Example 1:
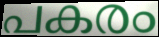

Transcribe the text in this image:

പകരം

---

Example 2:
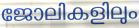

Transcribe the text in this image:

ജോലികളിലും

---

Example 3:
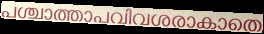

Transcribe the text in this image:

പശ്ചാത്താപവിവശരാകാതെ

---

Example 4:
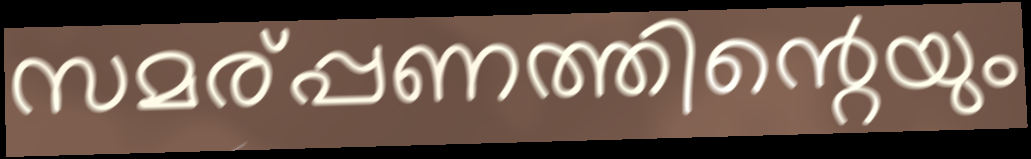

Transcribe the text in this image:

സമര്പ്പണത്തിന്റെയും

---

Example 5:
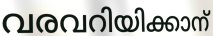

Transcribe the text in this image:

വരവറിയിക്കാന്